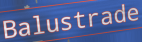
Balustrade